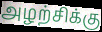
அழற்சிக்கு